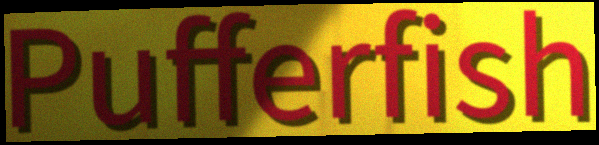
Pufferfish